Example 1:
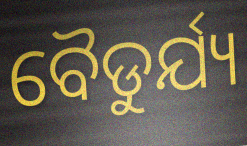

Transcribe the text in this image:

ବୈଡୁର୍ଯ୍ୟ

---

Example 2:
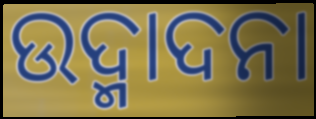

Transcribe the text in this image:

ଉଦ୍ମାଦନା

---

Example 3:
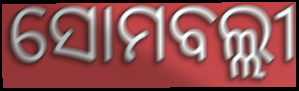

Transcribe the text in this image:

ସୋମବଲ୍ଲୀ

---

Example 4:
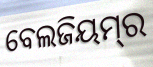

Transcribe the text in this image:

ବେଲଜିୟମ୍‌ର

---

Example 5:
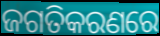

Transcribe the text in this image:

ଜଗତିକରଣରେ